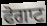
ਫੋਗਾਟ